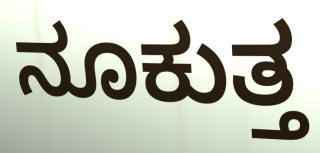
ನೂಕುತ್ತ